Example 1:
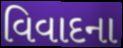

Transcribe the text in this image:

વિવાદના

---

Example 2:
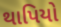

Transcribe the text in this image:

થાપિયો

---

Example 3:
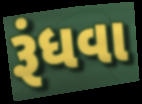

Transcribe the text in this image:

રૂંધવા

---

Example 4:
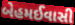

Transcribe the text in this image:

બેહમઈવાસી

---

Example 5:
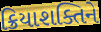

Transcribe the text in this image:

ક્રિયાશક્તિને